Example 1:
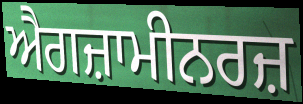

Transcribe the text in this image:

ਐਗਜ਼ਾਮੀਨਰਜ਼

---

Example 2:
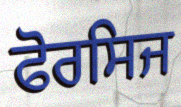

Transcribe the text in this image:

ਫੋਰਸਿਜ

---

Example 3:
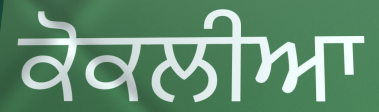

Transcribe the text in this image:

ਕੋਕਲੀਆ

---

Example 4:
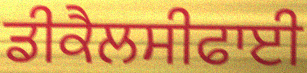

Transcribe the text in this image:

ਡੀਕੈਲਸੀਫਾਈ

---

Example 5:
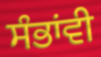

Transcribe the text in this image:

ਸੰਭਾਂਵੀ